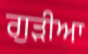
ਗੁਡ਼ੀਆ